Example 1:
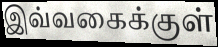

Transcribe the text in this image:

இவ்வகைக்குள்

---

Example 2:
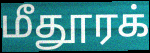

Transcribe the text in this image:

மீதூரக்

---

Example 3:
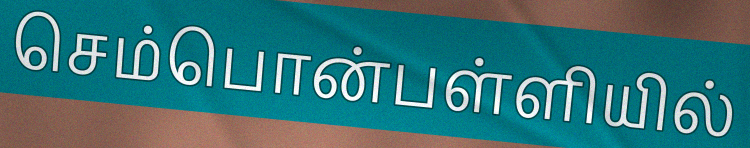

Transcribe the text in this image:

செம்பொன்பள்ளியில்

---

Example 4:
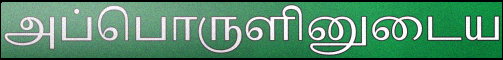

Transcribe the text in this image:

அப்பொருளினுடைய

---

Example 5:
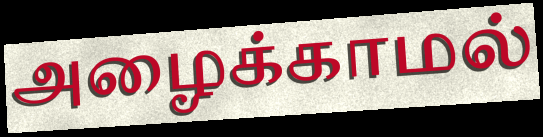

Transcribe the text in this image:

அழைக்காமல்